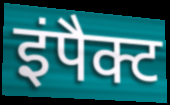
इंपैक्ट